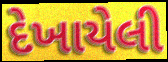
દેખાયેલી